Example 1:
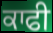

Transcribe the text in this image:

ਕਾਫੀ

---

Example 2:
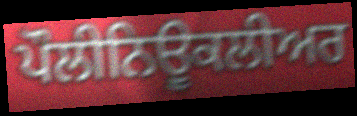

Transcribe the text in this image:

ਪੌਲੀਨਿਊਕਲੀਅਰ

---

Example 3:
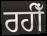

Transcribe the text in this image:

ਰਹੀਁ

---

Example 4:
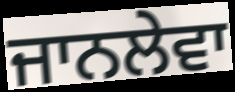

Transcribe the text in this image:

ਜਾਨਲੇਵਾ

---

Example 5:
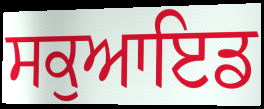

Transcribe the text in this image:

ਸਕੁਆਇਡ